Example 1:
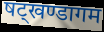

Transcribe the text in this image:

षट्खण्डागम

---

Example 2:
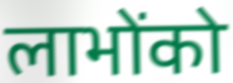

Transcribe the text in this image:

लाभोंको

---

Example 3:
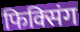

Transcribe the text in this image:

फिक्‍सिंग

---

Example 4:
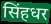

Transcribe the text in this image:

सिंहधर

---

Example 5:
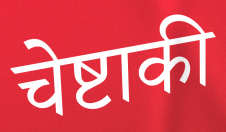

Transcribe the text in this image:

चेष्टाकी